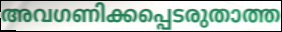
അവഗണിക്കപ്പെടരുതാത്ത